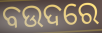
ବଉଦରେ